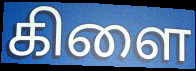
கிளை